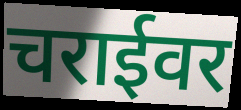
चराईवर